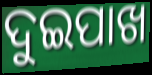
ଦୁଇପାଖ